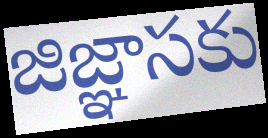
జిజ్ఞాసకు